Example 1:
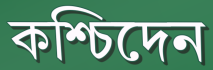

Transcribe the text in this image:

কশ্চিদেন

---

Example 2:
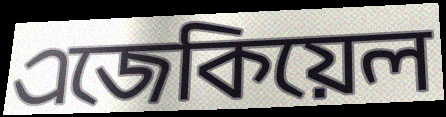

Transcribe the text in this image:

এজেকিয়েল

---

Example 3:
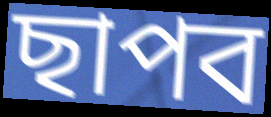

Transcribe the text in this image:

ছাপব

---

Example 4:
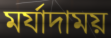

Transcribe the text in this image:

মর্যাদাময়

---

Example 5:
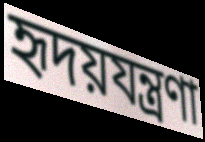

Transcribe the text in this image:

হৃদয়যন্ত্রণা